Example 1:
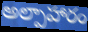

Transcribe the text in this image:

అల్పాహారం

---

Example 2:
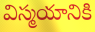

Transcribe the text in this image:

విస్మయానికి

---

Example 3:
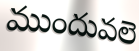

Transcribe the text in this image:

ముందువలె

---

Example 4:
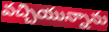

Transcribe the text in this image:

వచ్చియున్నాను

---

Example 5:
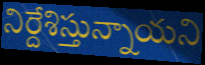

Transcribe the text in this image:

నిర్దేశిస్తున్నాయని